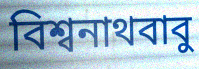
বিশ্বনাথবাবু